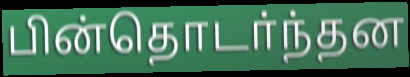
பின்தொடர்ந்தன